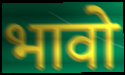
भावो